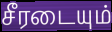
சீரடையும்